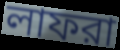
লাফরা